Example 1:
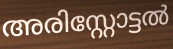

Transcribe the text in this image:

അരിസ്റ്റോട്ടൽ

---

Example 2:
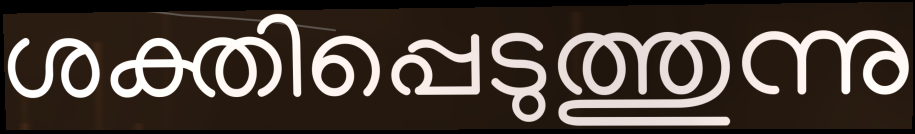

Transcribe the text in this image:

ശക്തിപ്പെടുത്തുന്നു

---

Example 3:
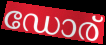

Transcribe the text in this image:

ഡോര്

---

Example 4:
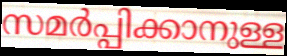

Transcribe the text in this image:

സമർപ്പിക്കാനുള്ള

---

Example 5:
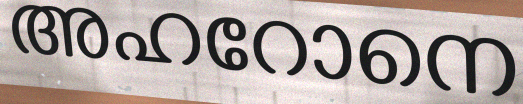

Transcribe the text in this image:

അഹറോനെ